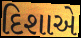
દિશાએ